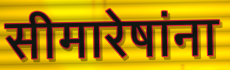
सीमारेषांना